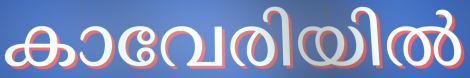
കാവേരിയിൽ